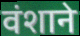
वंशाने